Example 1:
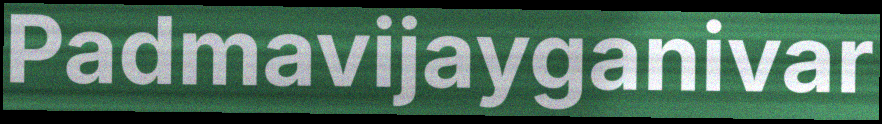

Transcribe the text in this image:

Padmavijayganivar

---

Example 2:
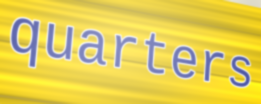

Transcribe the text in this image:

quarters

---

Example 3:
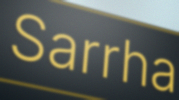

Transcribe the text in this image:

Sarrha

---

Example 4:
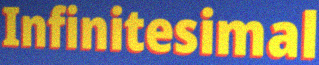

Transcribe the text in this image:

Infinitesimal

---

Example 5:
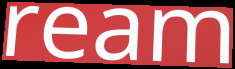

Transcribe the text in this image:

ream